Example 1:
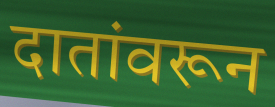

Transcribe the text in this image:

दातांवरून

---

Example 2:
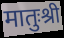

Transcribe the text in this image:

मातुःश्री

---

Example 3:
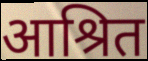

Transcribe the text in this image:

आश्रित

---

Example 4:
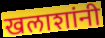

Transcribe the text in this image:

खलाशांनी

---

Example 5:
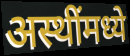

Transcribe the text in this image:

अस्थींमध्ये